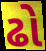
ઢો